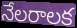
నేలరాలక